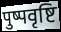
पुष्पवृष्टि